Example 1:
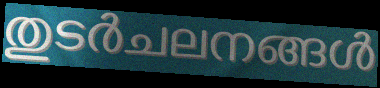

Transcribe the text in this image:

തുടർചലനങ്ങൾ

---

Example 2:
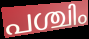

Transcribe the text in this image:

പശ്ചിം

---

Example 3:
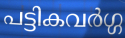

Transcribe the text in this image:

പട്ടികവർഗ്ഗ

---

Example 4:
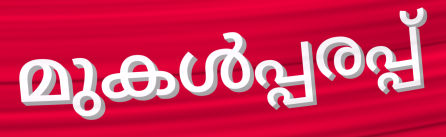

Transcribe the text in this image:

മുകൾപ്പരപ്പ്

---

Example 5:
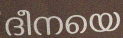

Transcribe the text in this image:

ദീനയെ